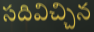
సదివిచ్చిన